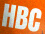
HBC